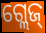
ଗ୍ଲେଜ୍